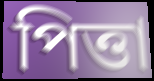
পিত্তা